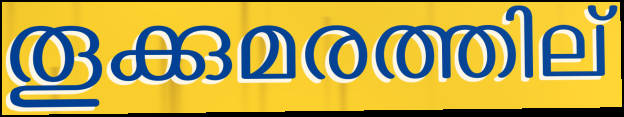
തൂക്കുമരത്തില്